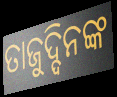
ତାଜୁଦ୍ଦିନଙ୍କ